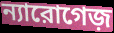
ন্যারোগেজ়